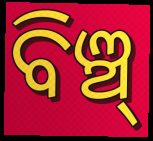
ବିଞ୍ଚ୍